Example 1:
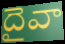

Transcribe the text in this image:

దైవా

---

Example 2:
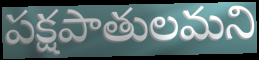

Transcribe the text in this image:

పక్షపాతులమని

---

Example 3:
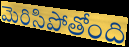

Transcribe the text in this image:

మెరిసిపోతోంది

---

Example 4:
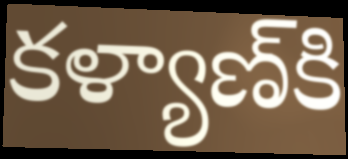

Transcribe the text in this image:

కళ్యాణ్‍కి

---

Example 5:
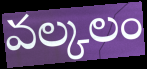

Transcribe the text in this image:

వల్కలం